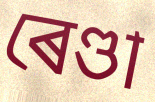
ৰেণ্ডা